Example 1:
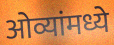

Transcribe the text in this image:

ओव्यांमध्ये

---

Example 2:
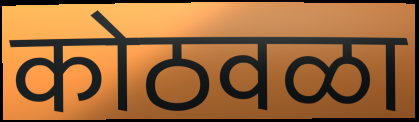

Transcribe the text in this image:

कोठवळा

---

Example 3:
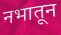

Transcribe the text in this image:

नभातून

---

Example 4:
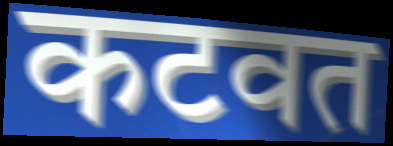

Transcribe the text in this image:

कटवत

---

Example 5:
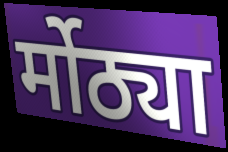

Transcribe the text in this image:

र्मोठ्या